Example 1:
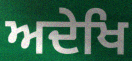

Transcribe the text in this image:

ਅਦੇਖਿ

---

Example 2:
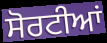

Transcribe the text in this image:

ਸੋਰਟੀਆਂ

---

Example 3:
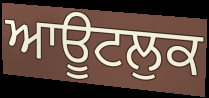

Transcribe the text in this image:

ਆਊਟਲੁਕ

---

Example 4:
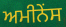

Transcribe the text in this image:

ਅਮੀਨੇਂਸ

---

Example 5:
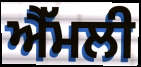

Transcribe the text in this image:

ਐੱਮਲੀ